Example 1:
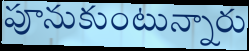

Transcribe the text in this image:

పూనుకుంటున్నారు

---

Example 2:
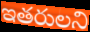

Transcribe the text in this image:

ఇతరులని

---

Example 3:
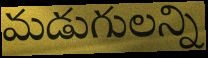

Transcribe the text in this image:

మడుగులన్ని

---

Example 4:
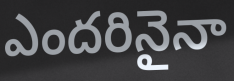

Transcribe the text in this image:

ఎందరినైనా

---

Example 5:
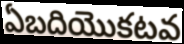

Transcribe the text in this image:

ఏబదియొకటవ